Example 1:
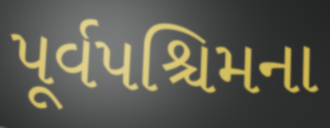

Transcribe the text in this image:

પૂર્વપશ્ચિમના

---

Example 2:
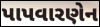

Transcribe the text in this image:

પાપવારણેન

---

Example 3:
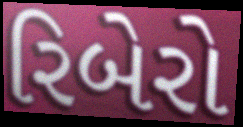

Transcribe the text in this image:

રિબેરો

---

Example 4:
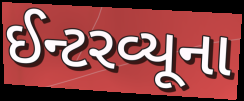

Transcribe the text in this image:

ઈન્ટરવ્યૂના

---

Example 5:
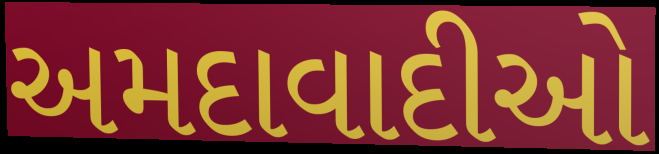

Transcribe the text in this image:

અમદાવાદીઓ